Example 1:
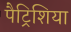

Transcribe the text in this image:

पैट्रिशिया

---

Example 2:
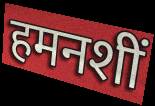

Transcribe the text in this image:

हमनशीं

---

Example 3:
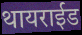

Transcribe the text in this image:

थायराईड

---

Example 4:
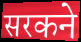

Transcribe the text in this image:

सरकने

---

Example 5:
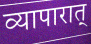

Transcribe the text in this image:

व्यापारात्